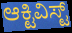
ಆಕ್ಟಿವಿಸ್ಟ್